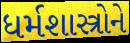
ધર્મશાસ્ત્રોને